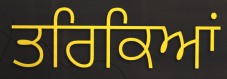
ਤਰਿਕਿਆਂ